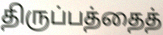
திருப்பத்தைத்